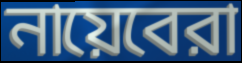
নায়েবেরা